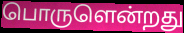
பொருளென்றது